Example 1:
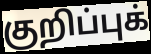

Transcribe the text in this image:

குறிப்புக்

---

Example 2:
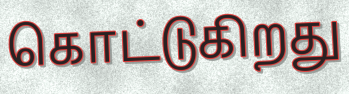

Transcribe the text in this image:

கொட்டுகிறது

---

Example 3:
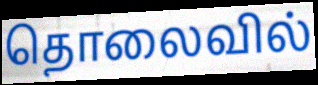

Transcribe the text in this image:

தொலைவில்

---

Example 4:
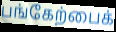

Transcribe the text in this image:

பங்கேற்பைக்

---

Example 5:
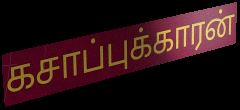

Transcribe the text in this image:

கசாப்புக்காரன்